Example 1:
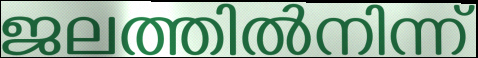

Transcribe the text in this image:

ജലത്തിൽനിന്ന്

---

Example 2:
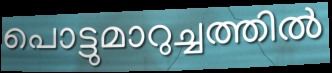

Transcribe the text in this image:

പൊട്ടുമാറുച്ചത്തിൽ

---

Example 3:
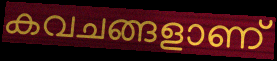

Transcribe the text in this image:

കവചങ്ങളാണ്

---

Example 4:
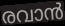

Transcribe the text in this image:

രവാൻ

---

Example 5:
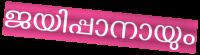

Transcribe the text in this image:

ജയിപ്പാനായും